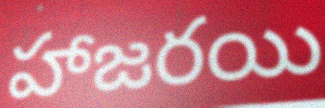
హాజరయి